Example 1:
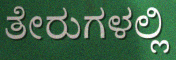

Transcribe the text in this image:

ತೇರುಗಳಲ್ಲಿ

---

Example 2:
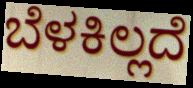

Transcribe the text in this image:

ಬೆಳಕಿಲ್ಲದೆ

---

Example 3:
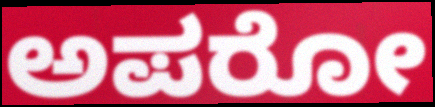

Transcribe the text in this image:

ಅಪರೋ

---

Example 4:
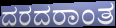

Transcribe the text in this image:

ದರದರಾಂತ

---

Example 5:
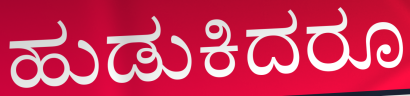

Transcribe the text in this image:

ಹುಡುಕಿದರೂ